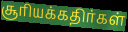
சூரியக்கதிர்கள்